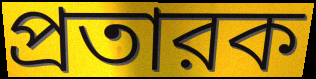
প্রতারক